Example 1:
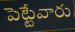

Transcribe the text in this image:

పెట్టేవారు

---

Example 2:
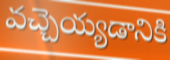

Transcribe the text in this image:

వచ్చెయ్యడానికి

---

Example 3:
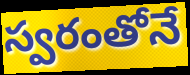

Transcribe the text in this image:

స్వరంతోనే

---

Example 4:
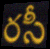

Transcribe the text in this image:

రసీ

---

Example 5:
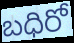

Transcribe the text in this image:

బధిరో